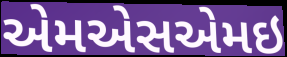
એમએસએમઇ